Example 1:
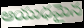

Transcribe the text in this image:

ఆయుధమైన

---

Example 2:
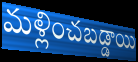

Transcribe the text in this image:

మళ్లించబడ్డాయి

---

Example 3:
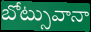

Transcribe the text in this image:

బోట్సువానా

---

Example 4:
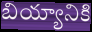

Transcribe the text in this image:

బియ్యానికి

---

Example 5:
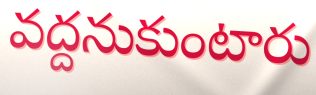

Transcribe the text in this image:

వద్దనుకుంటారు